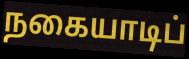
நகையாடிப்